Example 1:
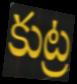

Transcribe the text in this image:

కుట్ర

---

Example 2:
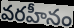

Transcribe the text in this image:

వరహీనం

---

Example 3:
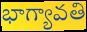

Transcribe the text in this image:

భాగ్యావతి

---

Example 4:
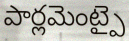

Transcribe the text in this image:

పార్లమెంట్పై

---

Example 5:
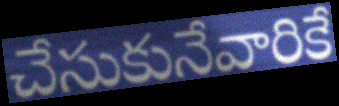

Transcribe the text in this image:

చేసుకునేవారికే